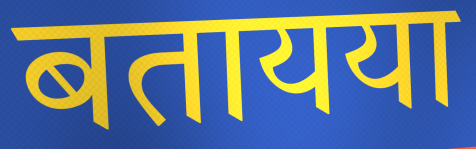
बतायया